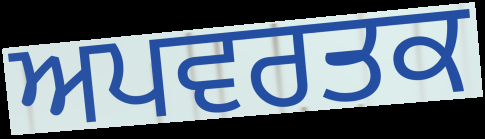
ਅਪਵਰਤਕ